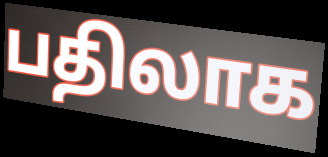
பதிலாக